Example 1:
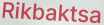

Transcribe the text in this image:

Rikbaktsa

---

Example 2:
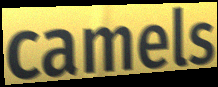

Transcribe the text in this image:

camels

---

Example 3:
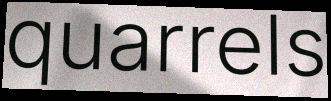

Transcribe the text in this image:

quarrels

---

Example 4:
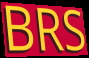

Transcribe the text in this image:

BRS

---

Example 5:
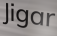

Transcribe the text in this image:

Jigar